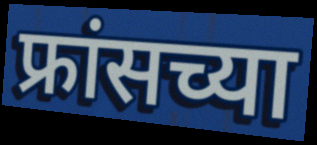
फ्रांसच्या